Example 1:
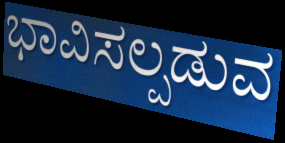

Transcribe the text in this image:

ಭಾವಿಸಲ್ಪಡುವ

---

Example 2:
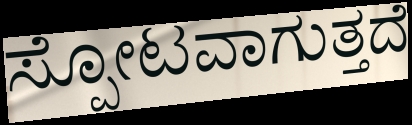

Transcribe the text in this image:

ಸ್ಪೋಟವಾಗುತ್ತದೆ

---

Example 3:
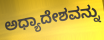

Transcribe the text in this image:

ಅಧ್ಯಾದೇಶವನ್ನು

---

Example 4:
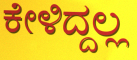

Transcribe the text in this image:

ಕೇಳಿದ್ದಲ್ಲ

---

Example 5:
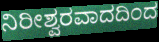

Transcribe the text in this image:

ನಿರೀಶ್ವರವಾದದಿಂದ